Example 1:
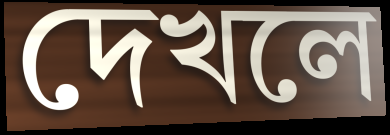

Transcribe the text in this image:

দেখলে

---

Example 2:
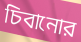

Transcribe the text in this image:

চিবানোর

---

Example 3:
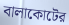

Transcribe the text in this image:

বালাকোটের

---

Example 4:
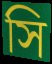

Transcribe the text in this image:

সি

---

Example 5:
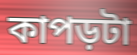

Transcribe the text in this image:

কাপড়টা